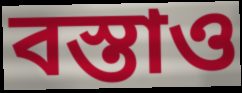
বস্তাও